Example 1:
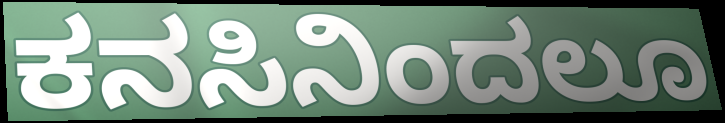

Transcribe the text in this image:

ಕನಸಿನಿಂದಲೂ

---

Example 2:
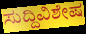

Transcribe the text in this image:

ಸುದ್ದಿವಿಶೇಷ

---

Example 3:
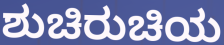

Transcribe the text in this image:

ಶುಚಿರುಚಿಯ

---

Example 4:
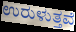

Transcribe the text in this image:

ಉರುಳುತ್ತವೆ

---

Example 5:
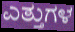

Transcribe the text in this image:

ಎತ್ತುಗಳ